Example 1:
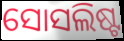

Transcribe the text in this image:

ସୋସଲିଷ୍ଟ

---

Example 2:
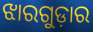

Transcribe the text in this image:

ଝାରଗୁଡ଼ାର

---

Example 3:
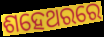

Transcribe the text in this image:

ଶହେଥରରେ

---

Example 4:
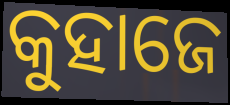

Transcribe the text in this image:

କୁହାଜେ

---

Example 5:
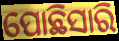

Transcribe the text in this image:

ପୋଛିସାରି